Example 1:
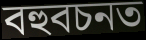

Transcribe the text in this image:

বহুবচনত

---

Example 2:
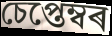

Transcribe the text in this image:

চেপ্তেম্বৰ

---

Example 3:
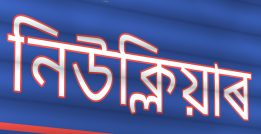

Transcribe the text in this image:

নিউক্লিয়াৰ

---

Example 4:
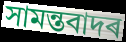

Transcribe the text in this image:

সামন্তবাদৰ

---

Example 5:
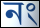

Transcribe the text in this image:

নং